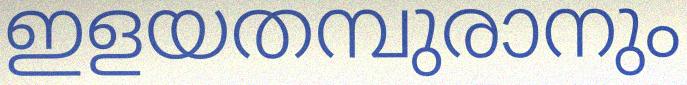
ഇളയതമ്പുരാനും